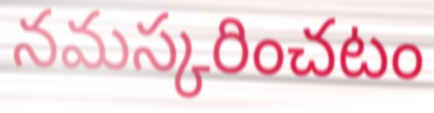
నమస్కరించటం